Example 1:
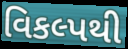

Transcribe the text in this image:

વિકલ્પથી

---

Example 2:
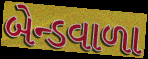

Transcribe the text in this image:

બેન્ડવાળા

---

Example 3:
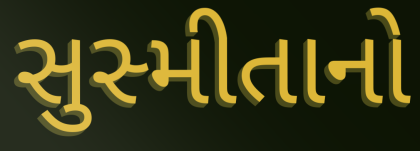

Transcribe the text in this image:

સુસ્મીતાનો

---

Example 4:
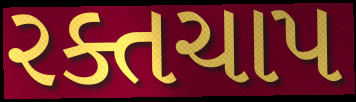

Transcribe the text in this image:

રક્તચાપ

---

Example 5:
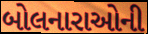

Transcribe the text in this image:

બોલનારાઓની